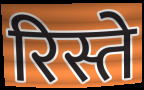
रिस्ते